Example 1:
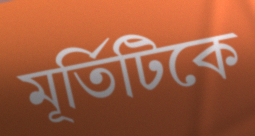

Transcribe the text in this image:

মূর্তিটিকে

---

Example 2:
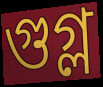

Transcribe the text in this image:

গুগ্ল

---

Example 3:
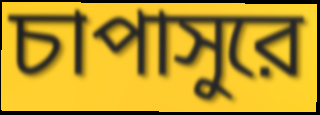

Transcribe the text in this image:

চাপাসুরে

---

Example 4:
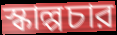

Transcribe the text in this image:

স্কাল্পচার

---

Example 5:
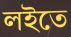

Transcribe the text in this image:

লইতে